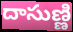
దాసుణ్ణి